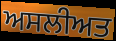
ਅਸਲੀਅਤ